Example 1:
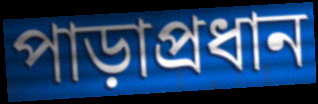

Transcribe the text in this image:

পাড়াপ্রধান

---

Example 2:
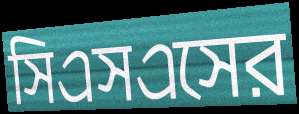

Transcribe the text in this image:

সিএসএসের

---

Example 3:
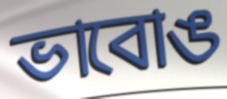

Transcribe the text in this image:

ভাবোঙ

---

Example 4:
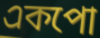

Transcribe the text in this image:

একপো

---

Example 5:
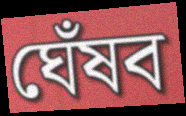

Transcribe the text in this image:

ঘেঁষব